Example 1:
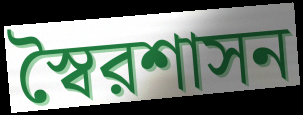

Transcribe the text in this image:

স্বৈরশাসন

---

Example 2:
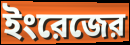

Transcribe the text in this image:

ইংরেজের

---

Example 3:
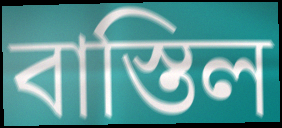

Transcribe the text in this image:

বাস্তিল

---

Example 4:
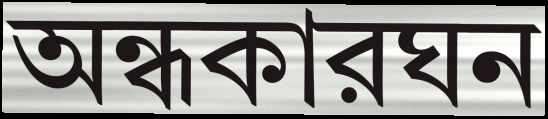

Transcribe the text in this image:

অন্ধকারঘন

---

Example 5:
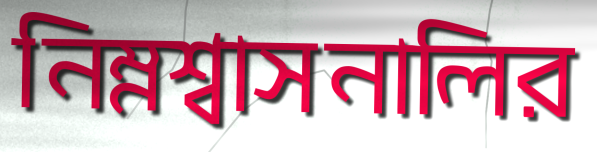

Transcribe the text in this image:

নিম্নশ্বাসনালির